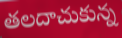
తలదాచుకున్న